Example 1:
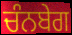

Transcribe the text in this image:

ਚੰਨਬੇਗ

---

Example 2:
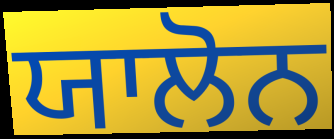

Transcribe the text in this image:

ਯਾਲੋਨ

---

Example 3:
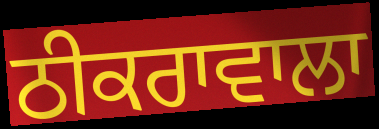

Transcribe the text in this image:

ਠੀਕਰਾਵਾਲਾ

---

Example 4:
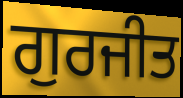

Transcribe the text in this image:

ਗੁਰਜੀਤ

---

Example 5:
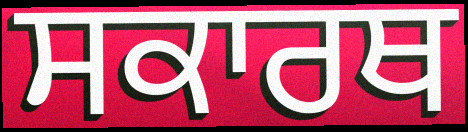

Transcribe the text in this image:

ਸਕਾਰਥ